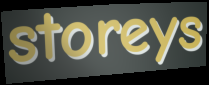
storeys